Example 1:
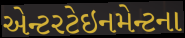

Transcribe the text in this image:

એન્ટરટેઇનમેન્ટના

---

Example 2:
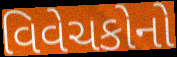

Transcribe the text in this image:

વિવેચકોનો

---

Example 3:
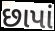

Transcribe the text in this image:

છાપાં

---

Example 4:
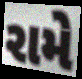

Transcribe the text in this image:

રામે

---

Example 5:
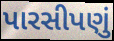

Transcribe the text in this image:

પારસીપણું